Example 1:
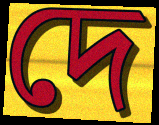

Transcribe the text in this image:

দে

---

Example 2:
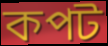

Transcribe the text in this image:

কপট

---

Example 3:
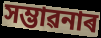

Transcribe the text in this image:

সম্ভাৱনাৰ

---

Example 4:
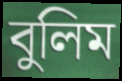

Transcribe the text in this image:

বুলিম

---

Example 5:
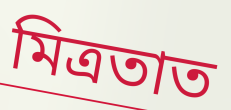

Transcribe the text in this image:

মিত্ৰতাত